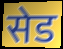
सेड